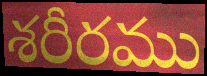
శరీరము